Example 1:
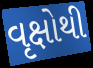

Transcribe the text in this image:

વૃક્ષોથી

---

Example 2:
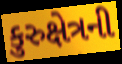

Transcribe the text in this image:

કુરુક્ષેત્રની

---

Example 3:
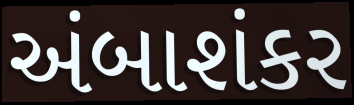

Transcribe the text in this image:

અંબાશંકર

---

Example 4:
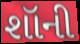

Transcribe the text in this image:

શૉની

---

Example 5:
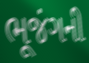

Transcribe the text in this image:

ભૂજંગની